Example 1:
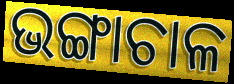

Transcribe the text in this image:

ଭଙ୍ଗାଚାଳ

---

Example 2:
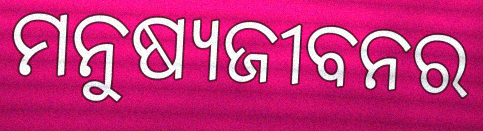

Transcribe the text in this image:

ମନୁଷ୍ୟଜୀବନର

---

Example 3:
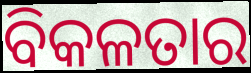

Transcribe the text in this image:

ବିକଳତାର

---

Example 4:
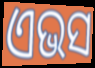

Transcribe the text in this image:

ଏଭସ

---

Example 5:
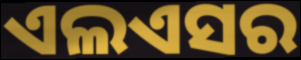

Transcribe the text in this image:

ଏଲଏସର